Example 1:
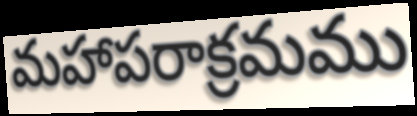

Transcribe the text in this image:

మహాపరాక్రమము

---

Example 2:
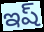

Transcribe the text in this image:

ఇష్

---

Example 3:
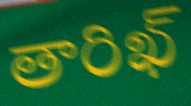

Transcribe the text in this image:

తారిఖ్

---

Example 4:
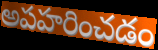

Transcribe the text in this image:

అపహరించడం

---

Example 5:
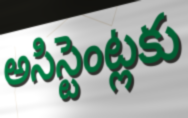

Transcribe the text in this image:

అసిస్టెంట్లకు